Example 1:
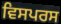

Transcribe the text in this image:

ਵਿਸਪਰਸ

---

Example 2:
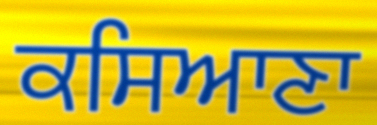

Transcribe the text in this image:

ਕਸਿਆਣਾ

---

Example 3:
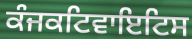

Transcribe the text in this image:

ਕੰਜਕਟਿਵਾਇਟਿਸ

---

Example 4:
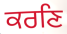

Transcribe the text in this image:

ਕਰਣਿ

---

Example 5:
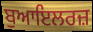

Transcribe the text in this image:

ਬੁਆਇਲਰਜ਼